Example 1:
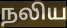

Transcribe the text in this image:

நலிய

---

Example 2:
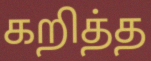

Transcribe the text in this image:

கறித்த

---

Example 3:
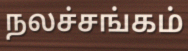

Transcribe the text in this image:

நலச்சங்கம்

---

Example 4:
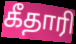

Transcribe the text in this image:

கீதாரி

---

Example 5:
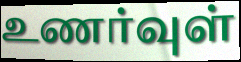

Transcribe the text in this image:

உணர்வுள்